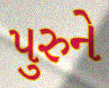
પુરુને